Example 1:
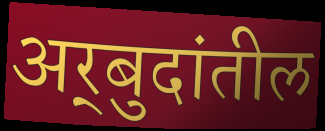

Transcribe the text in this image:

अर्बुदांतील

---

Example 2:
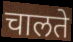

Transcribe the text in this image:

चालते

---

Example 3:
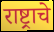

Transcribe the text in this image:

राष्ट्राचे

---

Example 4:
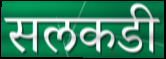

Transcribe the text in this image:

सलकडी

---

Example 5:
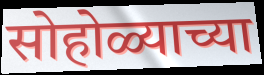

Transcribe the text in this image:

सोहोळ्याच्या